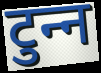
टुन्न